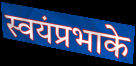
स्वयंप्रभाके